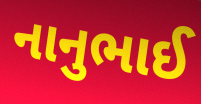
નાનુભાઈ